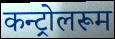
कन्ट्रोलरूम